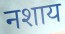
नशाय